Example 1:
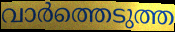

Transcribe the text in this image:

വാർത്തെടുത്ത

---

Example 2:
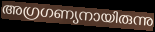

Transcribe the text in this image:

അഗ്രഗണ്യനായിരുന്നു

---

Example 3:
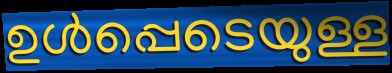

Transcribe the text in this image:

ഉൾപ്പെടെയുള്ള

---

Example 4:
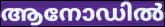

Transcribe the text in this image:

ആനോഡിൽ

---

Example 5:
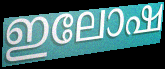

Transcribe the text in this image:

ഇലോഷ